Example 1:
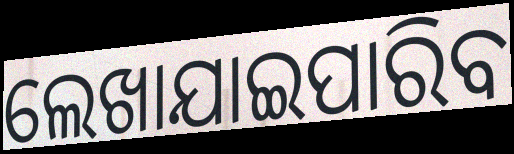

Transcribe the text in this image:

ଲେଖାଯାଇପାରିବ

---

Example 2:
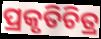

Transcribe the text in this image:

ପ୍ରକୃତିଚିତ୍ର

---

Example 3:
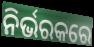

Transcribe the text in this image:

ନିର୍ଭରକରେ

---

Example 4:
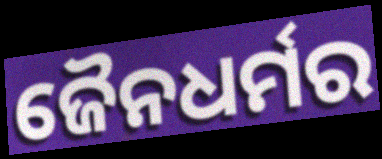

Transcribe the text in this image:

ଜୈନଧର୍ମର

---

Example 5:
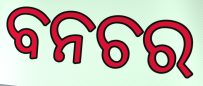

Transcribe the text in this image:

ବନଚର